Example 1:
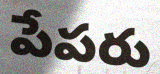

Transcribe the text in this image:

పేపరు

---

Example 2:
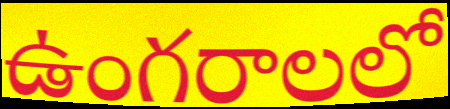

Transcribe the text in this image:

ఉంగరాలలో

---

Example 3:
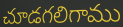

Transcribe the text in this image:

చూడగలిగాము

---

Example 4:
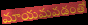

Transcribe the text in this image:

మాయమవడంతో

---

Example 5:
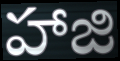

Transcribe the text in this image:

హాజి